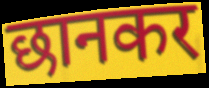
छानकर